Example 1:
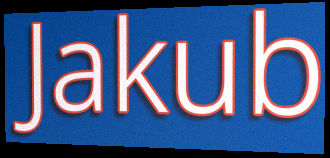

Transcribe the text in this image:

Jakub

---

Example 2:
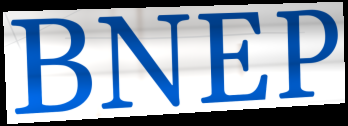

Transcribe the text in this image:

BNEP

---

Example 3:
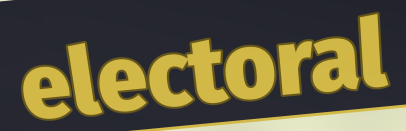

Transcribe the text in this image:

electoral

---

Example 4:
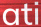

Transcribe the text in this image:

ati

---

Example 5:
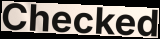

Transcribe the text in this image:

Checked